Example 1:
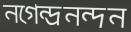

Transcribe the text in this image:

নগেন্দ্রনন্দন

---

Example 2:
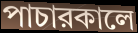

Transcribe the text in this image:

পাচারকালে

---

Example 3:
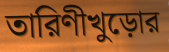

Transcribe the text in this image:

তারিণীখুড়োর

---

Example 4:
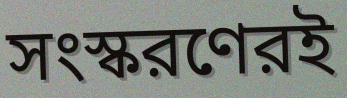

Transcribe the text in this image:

সংস্করণেরই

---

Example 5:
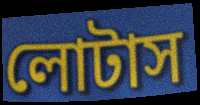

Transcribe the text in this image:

লোটাস